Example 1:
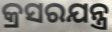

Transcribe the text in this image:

କ୍ରସରଯନ୍ତ୍ର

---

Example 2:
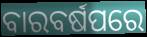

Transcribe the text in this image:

ବାରବର୍ଷପରେ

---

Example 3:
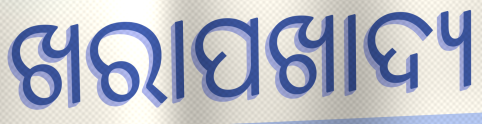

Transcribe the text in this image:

ଖରାପଖାଦ୍ୟ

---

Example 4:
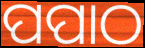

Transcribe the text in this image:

ପପାଠ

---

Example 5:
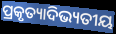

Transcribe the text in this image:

ପ୍ରକୃତ୍ୟାଦିଭ୍ୟତୀୟ